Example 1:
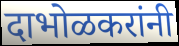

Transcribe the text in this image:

दाभोळकरांनी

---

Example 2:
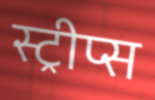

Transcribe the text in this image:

स्ट्रीप्स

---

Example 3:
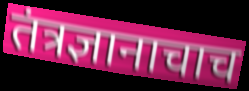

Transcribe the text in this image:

तंत्रज्ञानाचाच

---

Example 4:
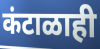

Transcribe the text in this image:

कंटाळाही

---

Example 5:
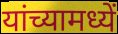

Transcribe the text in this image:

यांच्यामध्यें